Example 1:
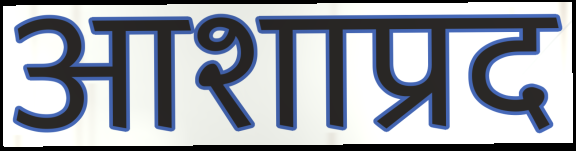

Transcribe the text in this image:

आशाप्रद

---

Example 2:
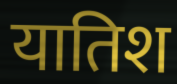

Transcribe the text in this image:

यातिश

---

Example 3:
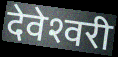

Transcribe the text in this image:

देवेश्वरी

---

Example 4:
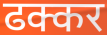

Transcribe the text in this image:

ढक्कर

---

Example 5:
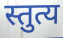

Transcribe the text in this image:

स्तुत्य